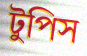
টুপিস